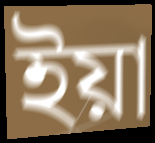
ইয়া